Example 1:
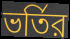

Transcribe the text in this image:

ভর্তির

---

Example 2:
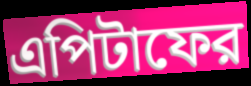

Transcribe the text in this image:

এপিটাফের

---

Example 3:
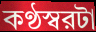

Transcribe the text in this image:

কণ্ঠস্বরটা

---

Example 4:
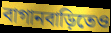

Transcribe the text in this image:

বাগানবাড়িতেও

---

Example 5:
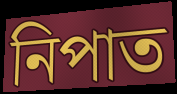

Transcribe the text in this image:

নিপাত